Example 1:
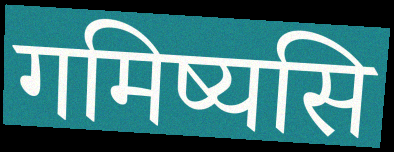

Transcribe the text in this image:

गमिष्यसि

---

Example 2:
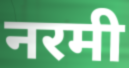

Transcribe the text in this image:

नरमी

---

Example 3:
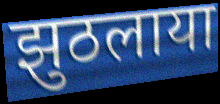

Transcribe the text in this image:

झुठलाया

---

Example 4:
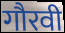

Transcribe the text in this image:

गौरवी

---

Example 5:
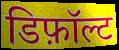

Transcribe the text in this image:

डिफ़ॉल्ट